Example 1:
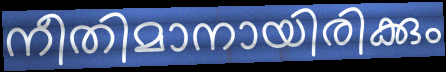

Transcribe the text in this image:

നീതിമാനായിരിക്കും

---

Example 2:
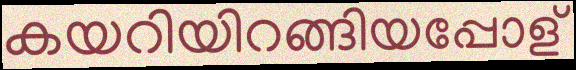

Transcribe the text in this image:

കയറിയിറങ്ങിയപ്പോള്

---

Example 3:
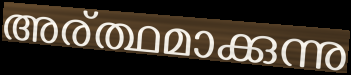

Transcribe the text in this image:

അര്ത്ഥമാക്കുന്നു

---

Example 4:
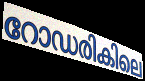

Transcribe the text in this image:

റോഡരികിലെ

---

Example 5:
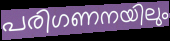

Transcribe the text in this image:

പരിഗണനയിലും